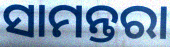
ସାମନ୍ତରା